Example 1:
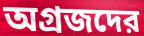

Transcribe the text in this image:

অগ্রজদের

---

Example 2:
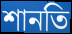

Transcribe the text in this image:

শানতি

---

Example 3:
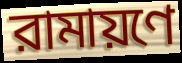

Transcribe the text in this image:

রামায়ণে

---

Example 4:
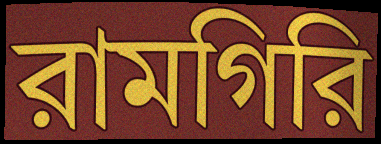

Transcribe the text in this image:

রামগিরি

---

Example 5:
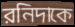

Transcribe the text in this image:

রনিদাকে